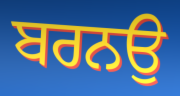
ਬਰਨਉ